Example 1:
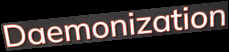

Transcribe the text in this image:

Daemonization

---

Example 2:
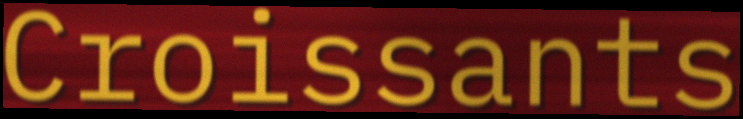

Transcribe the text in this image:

Croissants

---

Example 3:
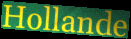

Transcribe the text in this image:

Hollande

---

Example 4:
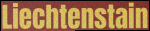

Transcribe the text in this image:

Liechtenstain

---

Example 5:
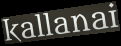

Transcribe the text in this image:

kallanai